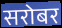
सरोबर